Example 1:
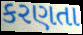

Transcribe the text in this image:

કરણતા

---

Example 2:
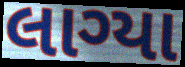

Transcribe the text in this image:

લાગ્યા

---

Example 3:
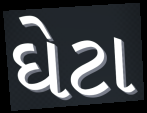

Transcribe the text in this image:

ઘેટા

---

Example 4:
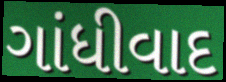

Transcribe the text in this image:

ગાંધીવાદ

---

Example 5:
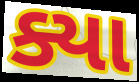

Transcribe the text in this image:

ક્યા